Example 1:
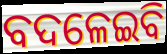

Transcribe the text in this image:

ବଦଳେଇବି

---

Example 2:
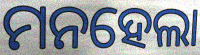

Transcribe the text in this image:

ମନହେଲା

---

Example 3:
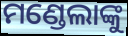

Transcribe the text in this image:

ମଣ୍ଡେଲାଙ୍କୁ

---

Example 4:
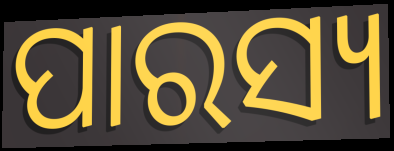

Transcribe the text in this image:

ପାରସ୍ୟ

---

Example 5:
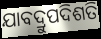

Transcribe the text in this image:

ଯାବଦ୍ରୁପଦିଶତି